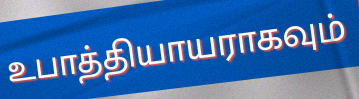
உபாத்தியாயராகவும்